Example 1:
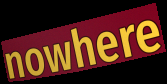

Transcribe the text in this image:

nowhere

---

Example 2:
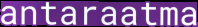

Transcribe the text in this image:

antaraatma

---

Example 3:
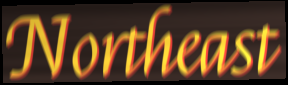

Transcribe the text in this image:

Northeast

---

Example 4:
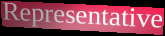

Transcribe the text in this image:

Representative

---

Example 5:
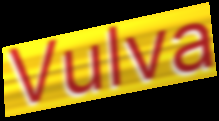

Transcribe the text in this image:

Vulva